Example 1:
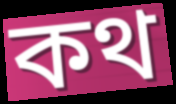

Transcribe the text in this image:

কথ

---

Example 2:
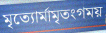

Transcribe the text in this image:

মৃত্যোর্মামৃতংগময়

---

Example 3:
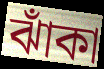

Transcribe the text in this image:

ঝাঁকা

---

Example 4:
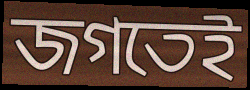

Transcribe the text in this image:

জগতেই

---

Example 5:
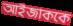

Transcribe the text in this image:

আইজাককে